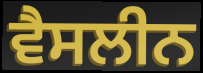
ਵੈਸਲੀਨ